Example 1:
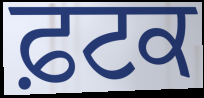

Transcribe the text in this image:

ਫ਼ਟਕ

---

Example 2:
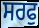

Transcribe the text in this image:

ਸਰਫੁ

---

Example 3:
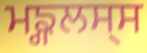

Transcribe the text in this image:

ਮਙ੍ਗਲਸ੍ਸ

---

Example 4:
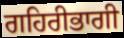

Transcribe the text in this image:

ਗਹਿਰੀਭਾਗੀ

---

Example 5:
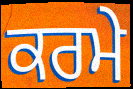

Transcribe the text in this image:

ਕਰਮੇ